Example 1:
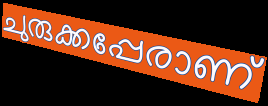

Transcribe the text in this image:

ചുരുക്കപ്പേരാണ്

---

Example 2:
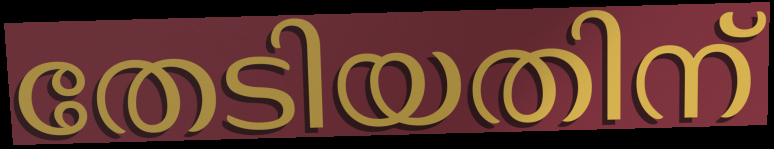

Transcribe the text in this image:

തേടിയതിന്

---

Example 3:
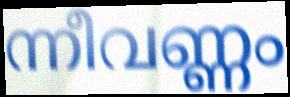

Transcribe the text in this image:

ന്നീവണ്ണം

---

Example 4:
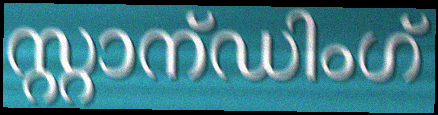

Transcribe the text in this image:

സ്റ്റാന്ഡിംഗ്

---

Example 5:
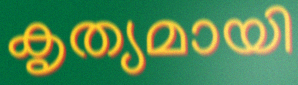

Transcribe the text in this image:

കൃത്യമായി